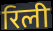
रिली